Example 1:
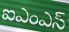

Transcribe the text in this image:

ఐఎంఎస్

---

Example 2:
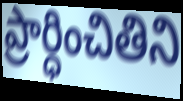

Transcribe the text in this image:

ప్రార్ధించితిని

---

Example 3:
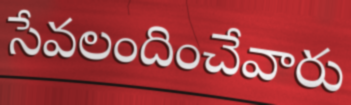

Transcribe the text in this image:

సేవలందించేవారు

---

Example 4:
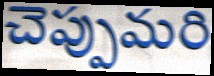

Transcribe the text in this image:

చెప్పుమరి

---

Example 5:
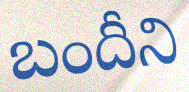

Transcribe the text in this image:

బందీని